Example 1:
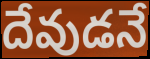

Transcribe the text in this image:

దేవుడనే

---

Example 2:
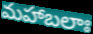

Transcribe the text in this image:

మహాబలాః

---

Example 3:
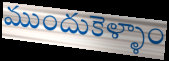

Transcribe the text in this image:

ముందుకెళ్ళాం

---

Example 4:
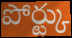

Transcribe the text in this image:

పోర్ట్కు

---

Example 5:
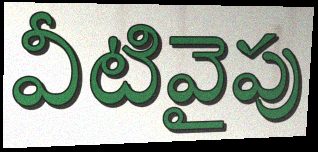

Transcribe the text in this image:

వీటివైపు